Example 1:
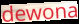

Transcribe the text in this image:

dewona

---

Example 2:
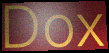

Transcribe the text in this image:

Dox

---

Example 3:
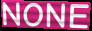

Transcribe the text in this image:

NONE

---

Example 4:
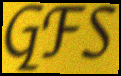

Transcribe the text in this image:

GFS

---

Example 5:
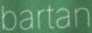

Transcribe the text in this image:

bartan